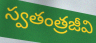
స్వతంత్రజీవి